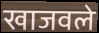
खाजवले